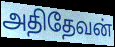
அதிதேவன்